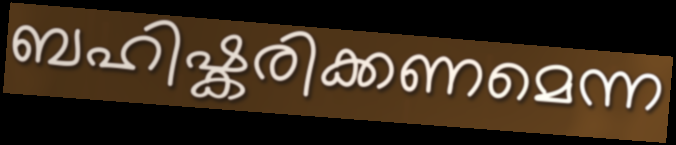
ബഹിഷ്കരിക്കണമെന്ന